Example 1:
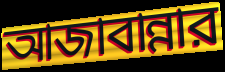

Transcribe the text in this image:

আজাবান্নার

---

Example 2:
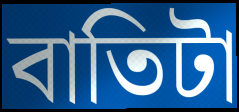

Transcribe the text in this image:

বাতিটা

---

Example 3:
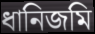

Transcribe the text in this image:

ধানিজমি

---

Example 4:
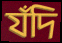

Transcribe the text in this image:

যঁদি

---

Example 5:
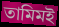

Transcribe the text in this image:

তামিমই